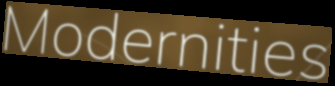
Modernities